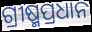
ଗ୍ରୀଷ୍ମପ୍ରଧାନ